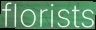
florists